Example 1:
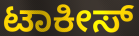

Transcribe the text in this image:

ಟಾಕೀಸ್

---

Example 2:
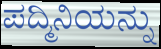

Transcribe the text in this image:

ಪದ್ಮಿನಿಯನ್ನು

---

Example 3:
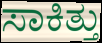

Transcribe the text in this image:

ಸಾಕಿತ್ತು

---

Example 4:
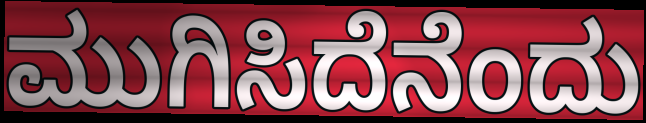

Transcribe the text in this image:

ಮುಗಿಸಿದೆನೆಂದು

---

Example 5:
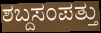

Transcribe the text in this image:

ಶಬ್ದಸಂಪತ್ತು